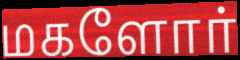
மகளோர்